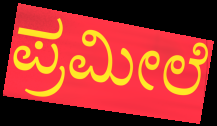
ಪ್ರಮೀಲೆ